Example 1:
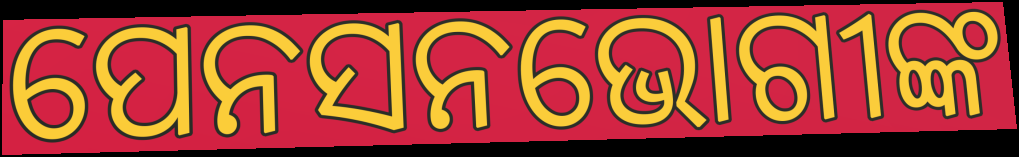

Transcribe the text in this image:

ପେନସନଭୋଗୀଙ୍କ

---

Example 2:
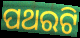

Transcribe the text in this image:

ପଥରଟି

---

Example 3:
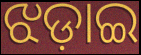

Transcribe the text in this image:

ଝଡ଼ାଇ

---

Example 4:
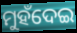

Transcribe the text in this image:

ମୁହଁଦେଇ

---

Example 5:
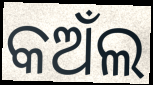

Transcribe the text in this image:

କଅଁଲ